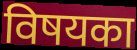
विषयका